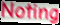
Noting